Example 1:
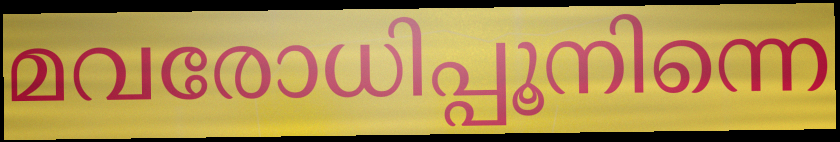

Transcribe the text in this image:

മവരോധിപ്പൂനിന്നെ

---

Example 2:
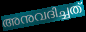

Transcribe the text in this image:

അനുവദിച്ചത്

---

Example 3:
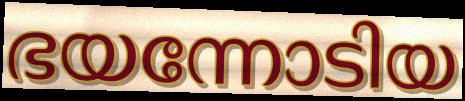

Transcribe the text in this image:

ഭയന്നോടിയ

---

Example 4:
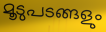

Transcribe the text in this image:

മൂടുപടങ്ങളും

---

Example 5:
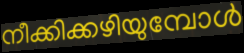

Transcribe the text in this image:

നീക്കിക്കഴിയുമ്പോൾ